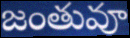
జంతువూ